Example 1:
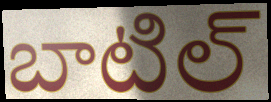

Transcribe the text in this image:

బాటిల్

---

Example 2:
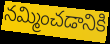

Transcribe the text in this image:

నమ్మించడానికి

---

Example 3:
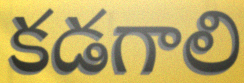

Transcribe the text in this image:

కడగాలి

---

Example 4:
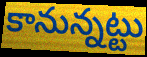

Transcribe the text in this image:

కానున్నట్టు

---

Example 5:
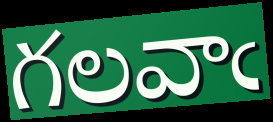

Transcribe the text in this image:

గలవాఁ